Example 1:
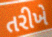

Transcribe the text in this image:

તરીખે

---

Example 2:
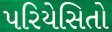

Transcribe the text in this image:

પરિયેસિતો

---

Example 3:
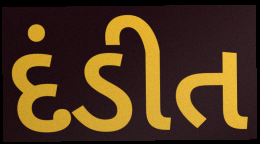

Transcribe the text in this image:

દંડીત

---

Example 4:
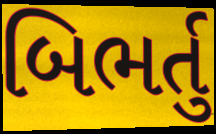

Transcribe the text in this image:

બિભર્તુ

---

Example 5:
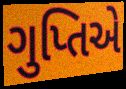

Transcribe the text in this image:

ગુપ્તિએ